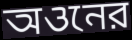
অওনের